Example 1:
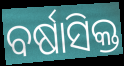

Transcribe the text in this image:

ବର୍ଷାସିକ୍ତ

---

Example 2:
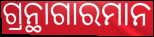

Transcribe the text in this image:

ଗ୍ରନ୍ଥାଗାରମାନ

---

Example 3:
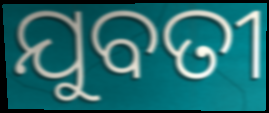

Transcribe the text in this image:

ଯୁବତୀ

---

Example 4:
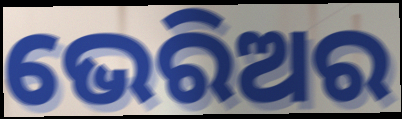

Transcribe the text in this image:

ଭେରିଅର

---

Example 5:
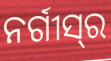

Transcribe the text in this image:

ନର୍ଗୀସ୍‍ର